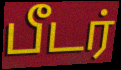
பீடர்